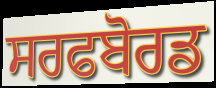
ਸਰਫਬੋਰਡ